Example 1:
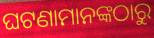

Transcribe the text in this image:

ଘଟଣାମାନଙ୍କଠାରୁ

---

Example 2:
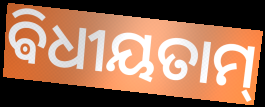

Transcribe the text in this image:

ଵିଧୀୟତାମ୍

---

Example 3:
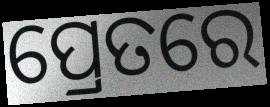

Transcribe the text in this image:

ପ୍ରେତରେ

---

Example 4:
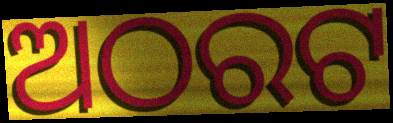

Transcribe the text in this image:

ଅଠରଟ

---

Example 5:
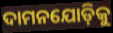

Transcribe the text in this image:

ଦାମନଯୋଡ଼ିକୁ